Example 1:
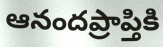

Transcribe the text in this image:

ఆనందప్రాప్తికి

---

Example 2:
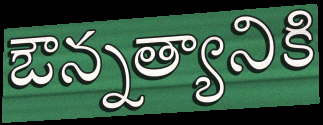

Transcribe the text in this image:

ఔన్నత్యానికి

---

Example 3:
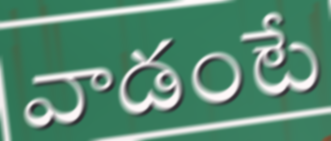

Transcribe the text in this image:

వాడంటే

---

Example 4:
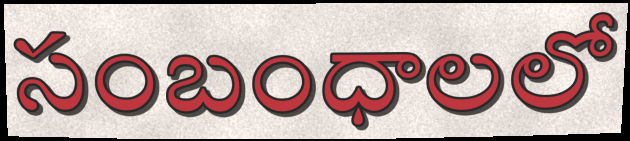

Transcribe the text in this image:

సంబంధాలలో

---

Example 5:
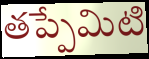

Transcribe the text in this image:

తప్పేమిటి